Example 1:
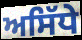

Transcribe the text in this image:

ਅਸਿੱਧੇ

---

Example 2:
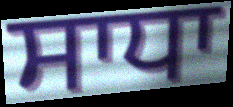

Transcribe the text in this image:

ਸਾਧਾ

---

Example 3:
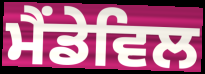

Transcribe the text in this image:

ਮੈਂਡੇਵਿਲ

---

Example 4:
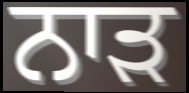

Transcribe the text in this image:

ਨਾੜ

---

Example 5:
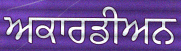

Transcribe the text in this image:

ਅਕਾਰਡੀਅਨ